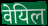
वेयिल